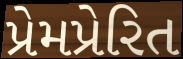
પ્રેમપ્રેરિત